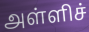
அள்ளிச்